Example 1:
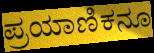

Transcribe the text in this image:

ಪ್ರಯಾಣಿಕನೂ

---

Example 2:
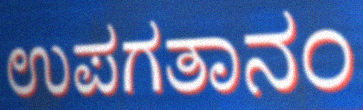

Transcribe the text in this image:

ಉಪಗತಾನಂ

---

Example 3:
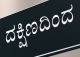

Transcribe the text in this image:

ದಕ್ಷಿಣದಿಂದ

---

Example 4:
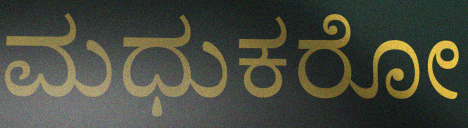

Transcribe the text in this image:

ಮಧುಕರೋ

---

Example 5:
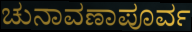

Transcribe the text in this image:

ಚುನಾವಣಾಪೂರ್ವ